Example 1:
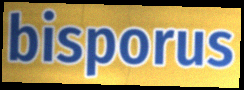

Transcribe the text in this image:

bisporus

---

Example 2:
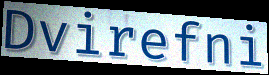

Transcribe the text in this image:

Dvirefni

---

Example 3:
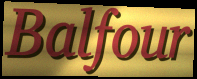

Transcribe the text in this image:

Balfour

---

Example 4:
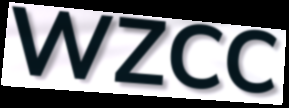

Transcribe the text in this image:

WZCC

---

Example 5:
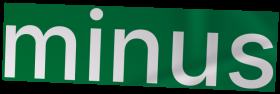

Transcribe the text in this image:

minus